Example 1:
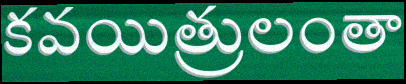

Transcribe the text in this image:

కవయిత్రులంతా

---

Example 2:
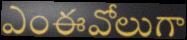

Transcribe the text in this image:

ఎంఈవోలుగా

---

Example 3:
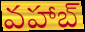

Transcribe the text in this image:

వహాబ్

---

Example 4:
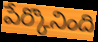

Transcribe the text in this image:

పేర్కొనింది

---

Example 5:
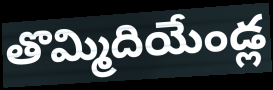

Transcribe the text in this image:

తొమ్మిదియేండ్ల